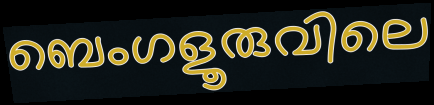
ബെംഗളൂരുവിലെ